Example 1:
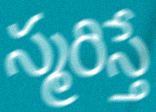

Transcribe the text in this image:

స్మరిస్తే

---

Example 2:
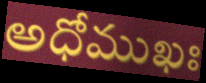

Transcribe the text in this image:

అధోముఖః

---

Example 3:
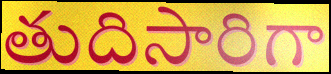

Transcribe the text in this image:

తుదిసారిగా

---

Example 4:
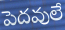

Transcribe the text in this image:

పెదవులే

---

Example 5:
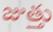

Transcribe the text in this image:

జుత్తు